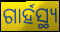
ଗାର୍ହସ୍ଥ୍ୟ